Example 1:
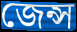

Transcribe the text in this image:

জেন্স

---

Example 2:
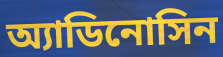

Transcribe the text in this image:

অ্যাডিনোসিন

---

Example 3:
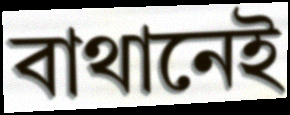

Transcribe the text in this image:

বাথানেই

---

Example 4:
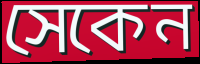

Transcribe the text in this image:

সেকেন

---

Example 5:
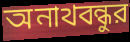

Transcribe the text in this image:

অনাথবন্ধুর